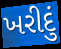
ખરીદું